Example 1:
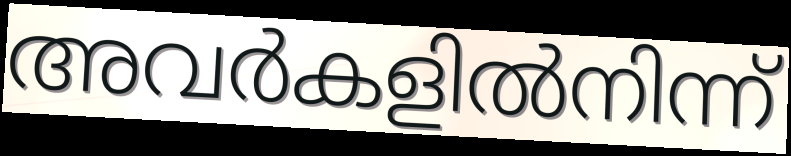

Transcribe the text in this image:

അവർകളിൽനിന്ന്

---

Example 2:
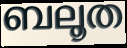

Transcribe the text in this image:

ബലൂത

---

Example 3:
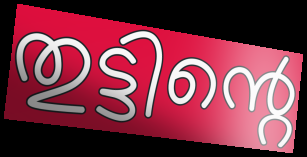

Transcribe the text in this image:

തുട്ടിന്റെ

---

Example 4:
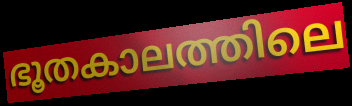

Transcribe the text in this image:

ഭൂതകാലത്തിലെ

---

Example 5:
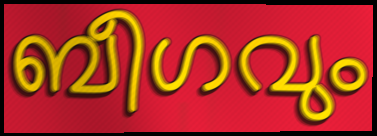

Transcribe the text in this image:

ബീഗവും